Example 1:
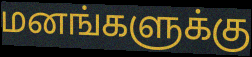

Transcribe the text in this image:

மனங்களுக்கு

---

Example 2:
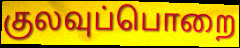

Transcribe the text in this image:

குலவுப்பொறை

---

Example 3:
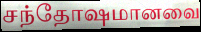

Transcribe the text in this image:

சந்தோஷமானவை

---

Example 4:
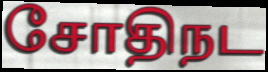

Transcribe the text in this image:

சோதிநட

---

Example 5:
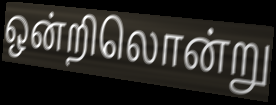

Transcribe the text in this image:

ஒன்றிலொன்று